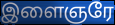
இளைஞரே